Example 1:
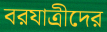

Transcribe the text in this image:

বরযাত্রীদের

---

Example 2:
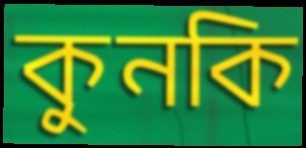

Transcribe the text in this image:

কুনকি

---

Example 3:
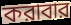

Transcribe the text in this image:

করাবার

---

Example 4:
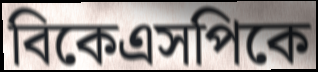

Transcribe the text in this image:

বিকেএসপিকে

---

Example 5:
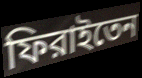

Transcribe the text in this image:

ফিরাইতেন